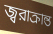
জ্বরাক্রান্ত